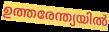
ഉത്തരേന്ത്യയിൽ